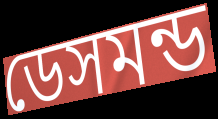
ডেসমন্ড